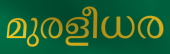
മുരളീധര